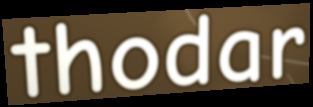
thodar